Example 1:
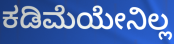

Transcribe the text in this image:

ಕಡಿಮೆಯೇನಿಲ್ಲ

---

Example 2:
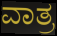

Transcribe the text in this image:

ವಾತ್ರ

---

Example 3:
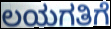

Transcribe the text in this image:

ಲಯಗತಿಗೆ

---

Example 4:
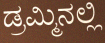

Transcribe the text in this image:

ಡ್ರಮ್ಮಿನಲ್ಲಿ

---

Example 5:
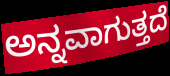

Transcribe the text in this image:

ಅನ್ನವಾಗುತ್ತದೆ